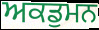
ਅਕਡੁਮਨ